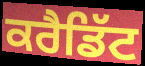
ਕਰੈਡਿੱਟ